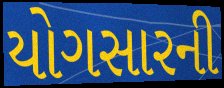
યોગસારની